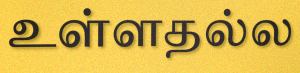
உள்ளதல்ல